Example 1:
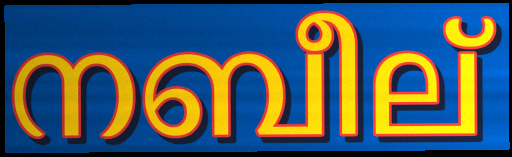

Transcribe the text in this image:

നബീല്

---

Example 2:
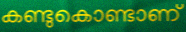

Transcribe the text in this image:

കണ്ടുകൊണ്ടാണ്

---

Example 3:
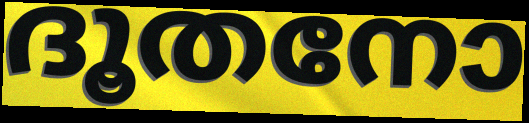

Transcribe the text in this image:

ദൂതനോ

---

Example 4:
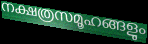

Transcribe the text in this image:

നക്ഷത്രസമൂഹങ്ങളും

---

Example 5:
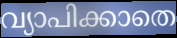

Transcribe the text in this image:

വ്യാപിക്കാതെ